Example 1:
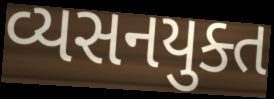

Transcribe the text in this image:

વ્યસનયુક્ત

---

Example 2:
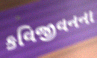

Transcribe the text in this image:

કવિજીવનના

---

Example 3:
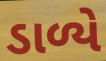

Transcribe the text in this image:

ડાળ્યે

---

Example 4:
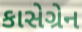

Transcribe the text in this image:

કાસેગ્રેન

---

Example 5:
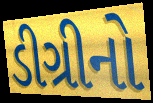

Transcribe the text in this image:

ડીગ્રીનો